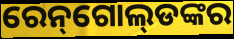
ରେନ୍‌ଗୋଲ୍‌ଡଙ୍କର